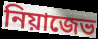
নিয়াজেভ